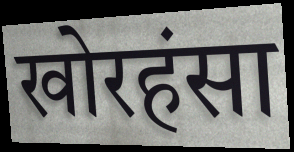
खोरहंसा